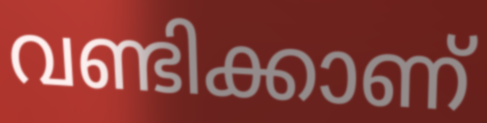
വണ്ടിക്കാണ്